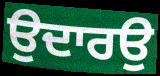
ਉਦਾਰਉ